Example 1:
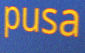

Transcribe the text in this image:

pusa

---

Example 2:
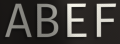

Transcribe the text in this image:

ABEF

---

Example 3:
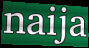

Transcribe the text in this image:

naija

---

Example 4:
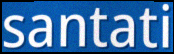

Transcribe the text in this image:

santati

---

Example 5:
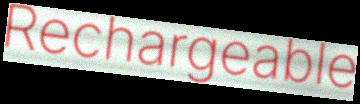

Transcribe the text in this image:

Rechargeable